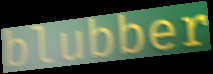
blubber